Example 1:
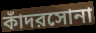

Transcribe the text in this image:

কাঁদরসোনা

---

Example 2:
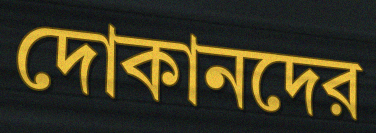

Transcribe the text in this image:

দোকানদের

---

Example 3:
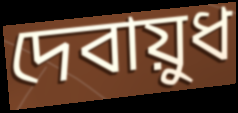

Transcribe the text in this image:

দেবায়ুধ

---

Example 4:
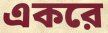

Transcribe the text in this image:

একরে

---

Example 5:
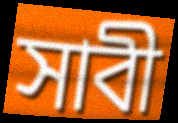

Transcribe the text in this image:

সাবী